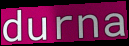
durna